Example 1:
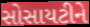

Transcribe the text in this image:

સોસાયટીને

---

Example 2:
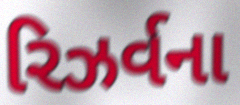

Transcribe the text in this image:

રિઝર્વના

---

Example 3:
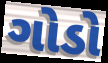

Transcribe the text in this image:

ગોડો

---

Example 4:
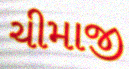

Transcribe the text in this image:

ચીમાજી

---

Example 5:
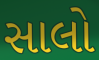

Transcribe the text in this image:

સાલો